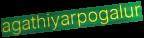
agathiyarpogalur